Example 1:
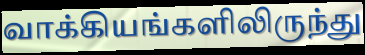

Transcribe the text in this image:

வாக்கியங்களிலிருந்து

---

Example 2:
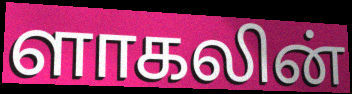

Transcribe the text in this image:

ளாகலின்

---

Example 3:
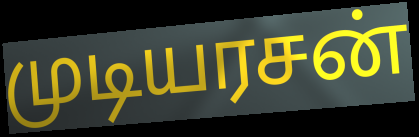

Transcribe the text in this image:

முடியரசன்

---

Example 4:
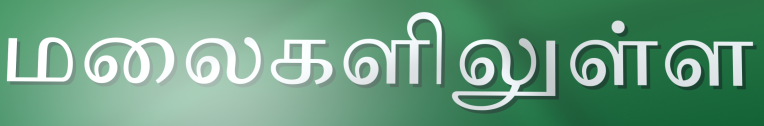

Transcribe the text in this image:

மலைகளிலுள்ள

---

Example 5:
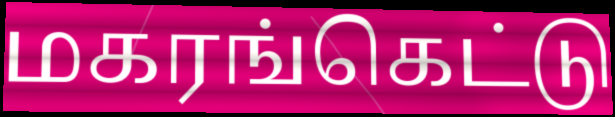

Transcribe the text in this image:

மகரங்கெட்டு